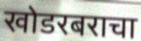
खोडरबराचा